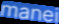
manei